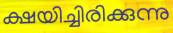
ക്ഷയിച്ചിരിക്കുന്നു